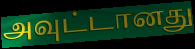
அவுட்டானது